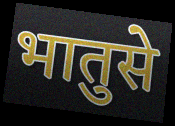
भातुसे